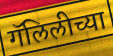
गॅलिलीच्या